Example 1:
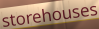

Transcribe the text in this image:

storehouses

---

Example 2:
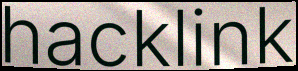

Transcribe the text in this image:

hacklink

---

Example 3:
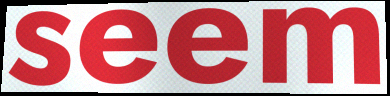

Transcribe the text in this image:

seem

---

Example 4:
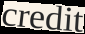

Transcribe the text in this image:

credit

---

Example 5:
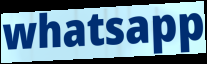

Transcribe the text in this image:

whatsapp